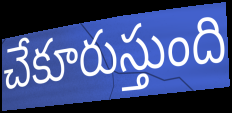
చేకూరుస్తుంది